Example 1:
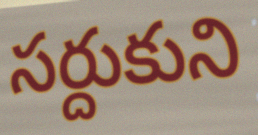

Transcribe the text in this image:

సర్దుకుని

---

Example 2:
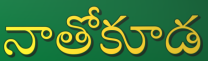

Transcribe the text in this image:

నాతోకూడ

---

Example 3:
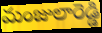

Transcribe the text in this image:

మంజులారెడ్డి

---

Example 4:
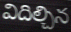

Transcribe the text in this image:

విదిల్చిన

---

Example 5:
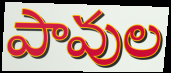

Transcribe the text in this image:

పావుల